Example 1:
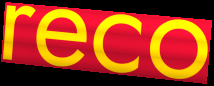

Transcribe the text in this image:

reco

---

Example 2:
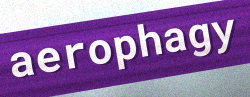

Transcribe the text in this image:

aerophagy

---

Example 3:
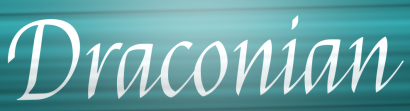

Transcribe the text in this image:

Draconian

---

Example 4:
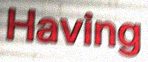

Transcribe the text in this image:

Having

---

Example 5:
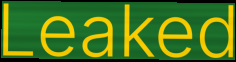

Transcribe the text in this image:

Leaked